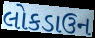
લોકડાઉન